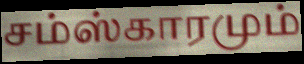
சம்ஸ்காரமும்